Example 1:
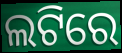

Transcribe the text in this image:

ଲଟିରେ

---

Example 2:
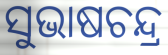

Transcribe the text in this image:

ସୁଭାଷଚନ୍ଦ୍ର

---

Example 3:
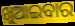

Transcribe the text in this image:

ଖୁଆଇବାର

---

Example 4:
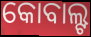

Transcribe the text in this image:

କୋବାଲ୍ଟ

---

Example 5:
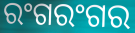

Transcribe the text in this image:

ରଂଗରଂଗର